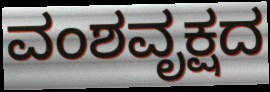
ವಂಶವೃಕ್ಷದ